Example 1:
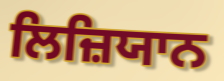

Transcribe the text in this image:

ਲਿਜ਼ਿਯਾਨ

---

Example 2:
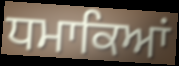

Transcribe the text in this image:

ਧਮਾਕਿਆਂ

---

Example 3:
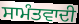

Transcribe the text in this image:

ਸਾਮੰਤਵਾਦੀ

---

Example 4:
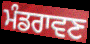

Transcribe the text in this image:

ਮੰਡਰਾਵਣ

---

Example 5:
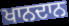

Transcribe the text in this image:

ਖਾਨਦਾਨ